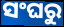
ସଂଘରୁ